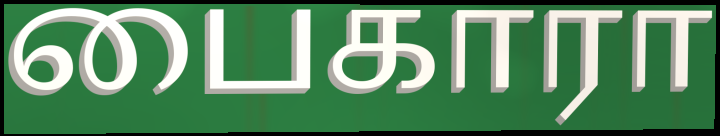
பைகாரா